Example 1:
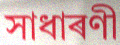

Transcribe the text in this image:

সাধাৰণী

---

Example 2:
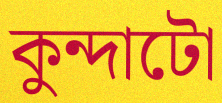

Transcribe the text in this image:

কুন্দাটো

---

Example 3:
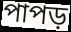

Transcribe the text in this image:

পাপড়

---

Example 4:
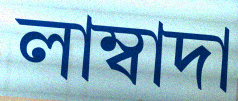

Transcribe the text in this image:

লাম্বাদা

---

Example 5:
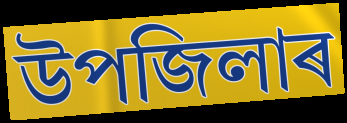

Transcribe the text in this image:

উপজিলাৰ